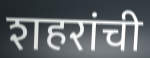
शहरांची